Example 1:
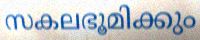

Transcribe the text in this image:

സകലഭൂമിക്കും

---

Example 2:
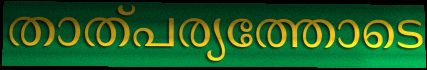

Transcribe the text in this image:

താത്പര്യത്തോടെ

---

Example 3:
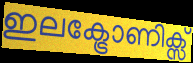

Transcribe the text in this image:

ഇലക്ട്രോണിക്സ്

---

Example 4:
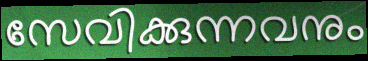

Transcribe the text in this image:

സേവിക്കുന്നവനും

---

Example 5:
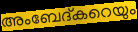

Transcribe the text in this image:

അംബേദ്കറെയും